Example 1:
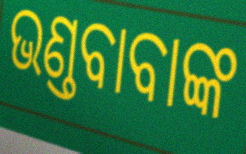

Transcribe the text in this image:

ଭଣ୍ଡବାବାଙ୍କ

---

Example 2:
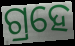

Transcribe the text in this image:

ଗ୍ରହେ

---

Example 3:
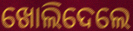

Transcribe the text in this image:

ଖୋଲିଦେଲେ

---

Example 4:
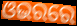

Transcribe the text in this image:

ଓଭରରେ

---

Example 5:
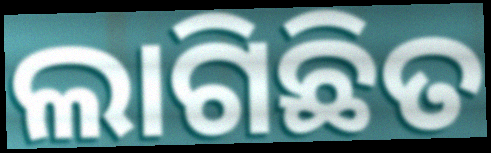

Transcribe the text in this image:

ଲାଗିଛିତ